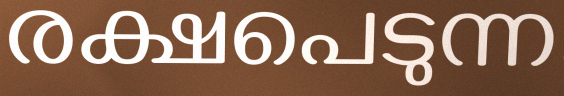
രക്ഷപെടുന്ന